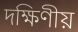
দক্ষিণীয়